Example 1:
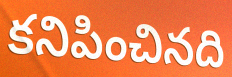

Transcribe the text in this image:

కనిపించినది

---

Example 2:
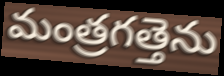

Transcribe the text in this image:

మంత్రగత్తెను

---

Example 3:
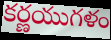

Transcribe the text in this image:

కర్ణయుగళం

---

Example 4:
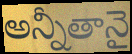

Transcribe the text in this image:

అన్నీతానై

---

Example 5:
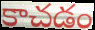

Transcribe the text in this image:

కాచడం